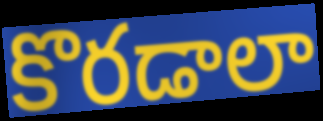
కొరడాలా